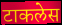
टाकलेस